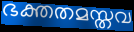
ഭക്തതമസ്തവ